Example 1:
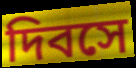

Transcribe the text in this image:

দিবসে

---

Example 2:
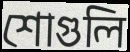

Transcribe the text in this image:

শোগুলি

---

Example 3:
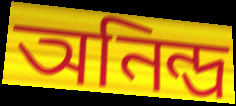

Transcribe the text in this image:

অনিন্দ্র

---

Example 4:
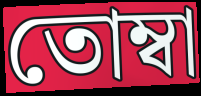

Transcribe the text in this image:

তোম্বা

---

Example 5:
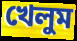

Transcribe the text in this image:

খেলুম